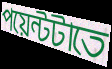
পয়েন্টটাতে